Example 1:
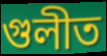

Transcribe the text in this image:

গুলীত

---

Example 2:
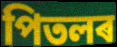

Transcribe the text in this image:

পিতলৰ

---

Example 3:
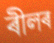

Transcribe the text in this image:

ৰীলৰ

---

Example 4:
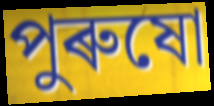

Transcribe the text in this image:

পুৰুষো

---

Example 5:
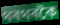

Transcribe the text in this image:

থৰথৰকৈ